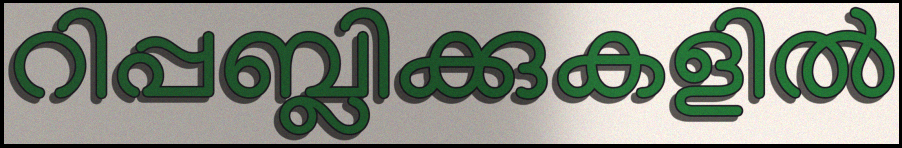
റിപ്പബ്ലിക്കുകളിൽ